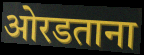
ओरडताना